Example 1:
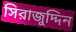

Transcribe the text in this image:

সিরাজুদ্দিন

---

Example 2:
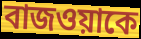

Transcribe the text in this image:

বাজওয়াকে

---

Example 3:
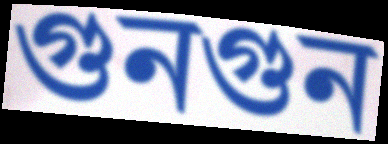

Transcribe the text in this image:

গুনগুন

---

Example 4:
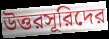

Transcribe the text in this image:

উত্তরসূরিদের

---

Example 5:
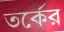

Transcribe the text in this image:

তর্কের